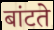
बांटते